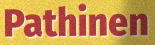
Pathinen